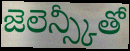
జెలెన్స్కీతో